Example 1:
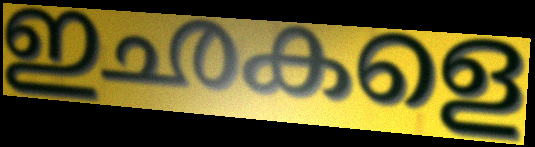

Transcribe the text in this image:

ഇഛകളെ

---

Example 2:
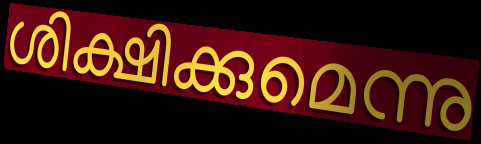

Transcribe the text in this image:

ശിക്ഷിക്കുമെന്നു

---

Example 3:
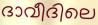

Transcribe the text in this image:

ദാവീദിലെ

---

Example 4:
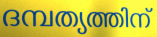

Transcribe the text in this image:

ദമ്പത്യത്തിന്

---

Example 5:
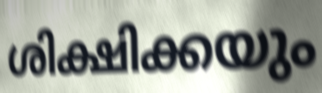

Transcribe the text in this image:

ശിക്ഷിക്കയും